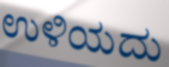
ಉಳಿಯದು